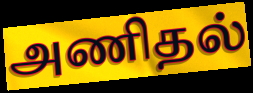
அணிதல்